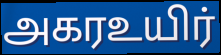
அகரஉயிர்